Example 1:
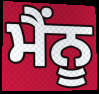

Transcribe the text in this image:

ਮੈਂਨੂ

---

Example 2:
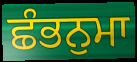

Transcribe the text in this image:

ਛੰਭਨੁਮਾ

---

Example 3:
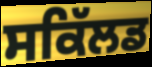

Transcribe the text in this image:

ਸਕਿੱਲਡ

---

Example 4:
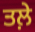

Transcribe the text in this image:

ਤਲ਼ੇ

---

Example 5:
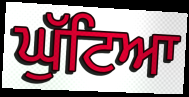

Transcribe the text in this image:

ਘੁੱਟਿਆ